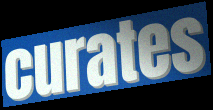
curates